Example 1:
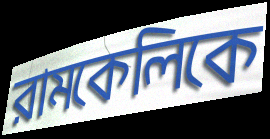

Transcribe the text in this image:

রামকেলিকে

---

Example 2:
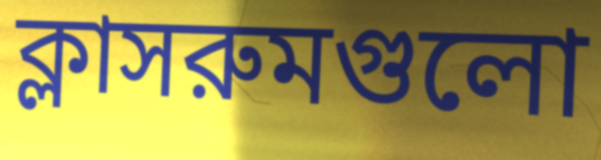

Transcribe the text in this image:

ক্লাসরুমগুলো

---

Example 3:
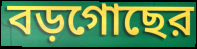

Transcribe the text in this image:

বড়গোছের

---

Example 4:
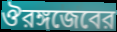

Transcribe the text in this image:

ঔরঙ্গজেবের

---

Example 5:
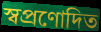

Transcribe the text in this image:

স্বপ্রণোদিত